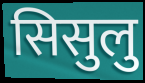
सिसुलु